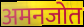
अमनजोत